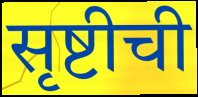
सृष्टीची